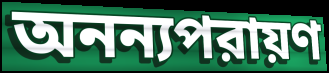
অনন্যপরায়ণ